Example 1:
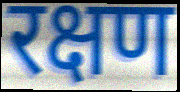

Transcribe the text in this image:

रक्षण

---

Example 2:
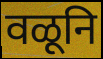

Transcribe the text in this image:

वळूनि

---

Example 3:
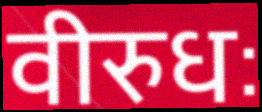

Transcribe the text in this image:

वीरुधः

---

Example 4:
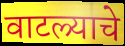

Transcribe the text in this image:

वाटल्याचे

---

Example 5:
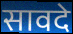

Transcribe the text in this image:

सावदे